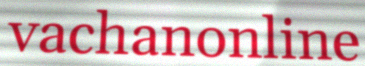
vachanonline